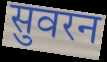
सुवरन